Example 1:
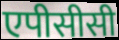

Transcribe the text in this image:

एपीसीसी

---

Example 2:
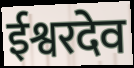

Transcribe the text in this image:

ईश्वरदेव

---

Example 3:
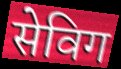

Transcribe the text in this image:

सेविग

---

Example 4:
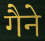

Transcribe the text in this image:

गैने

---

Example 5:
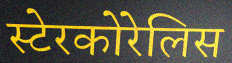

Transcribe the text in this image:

स्टेरकोरेलिस